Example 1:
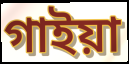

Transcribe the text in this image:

গাইয়া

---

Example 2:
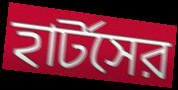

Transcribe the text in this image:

হার্টসের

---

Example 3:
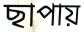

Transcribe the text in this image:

ছাপায়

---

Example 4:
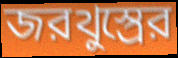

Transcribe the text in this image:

জরথুস্ত্রের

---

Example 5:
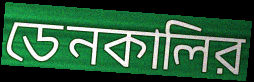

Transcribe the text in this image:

ডেনকালির